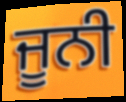
ਜੂਨੀ